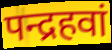
पन्द्रहवां